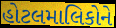
હોટલમાલિકોને